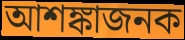
আশঙ্কাজনক